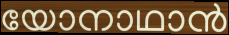
യോനാഥാൻ